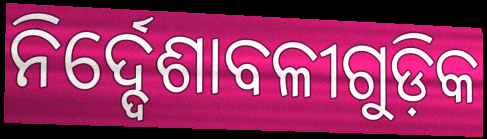
ନିର୍ଦ୍ଦେଶାବଳୀଗୁଡ଼ିକ